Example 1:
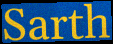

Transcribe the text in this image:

Sarth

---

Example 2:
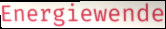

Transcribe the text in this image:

Energiewende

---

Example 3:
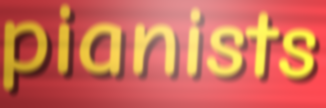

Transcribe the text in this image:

pianists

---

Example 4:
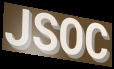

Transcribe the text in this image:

JSOC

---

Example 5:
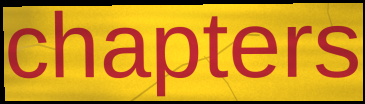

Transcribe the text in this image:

chapters